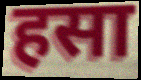
हसा